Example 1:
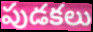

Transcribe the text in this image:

పుడకలు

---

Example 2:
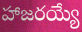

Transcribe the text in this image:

హాజరయ్యే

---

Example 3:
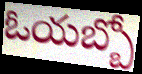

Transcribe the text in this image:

ఓయబ్బో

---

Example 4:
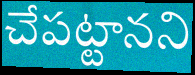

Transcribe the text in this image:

చేపట్టానని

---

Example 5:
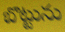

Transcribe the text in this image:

బొట్టును